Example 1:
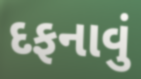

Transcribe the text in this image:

દફનાવું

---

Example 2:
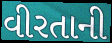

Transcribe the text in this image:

વીરતાની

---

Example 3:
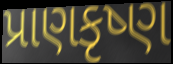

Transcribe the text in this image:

પ્રાણકૃષ્ણ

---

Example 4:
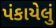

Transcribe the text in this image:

પંકાયેલું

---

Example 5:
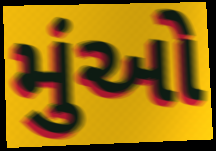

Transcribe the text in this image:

મુંઓ